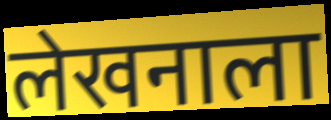
लेखनाला